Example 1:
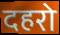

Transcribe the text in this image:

दहरो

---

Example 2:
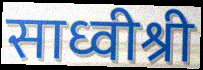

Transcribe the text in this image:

साध्वीश्री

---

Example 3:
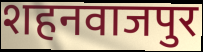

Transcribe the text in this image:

शहनवाजपुर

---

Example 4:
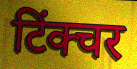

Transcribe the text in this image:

टिंक्चर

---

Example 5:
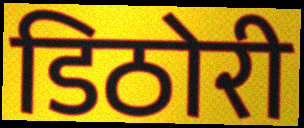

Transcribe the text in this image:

डिठोरी